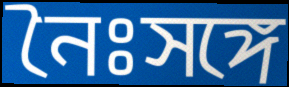
নৈঃসঙ্গে